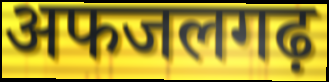
अफजलगढ़